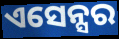
ଏସେନ୍ସର